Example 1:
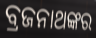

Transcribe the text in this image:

ବ୍ରଜନାଥଙ୍କର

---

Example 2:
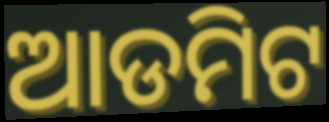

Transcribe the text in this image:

ଆଡମିଟ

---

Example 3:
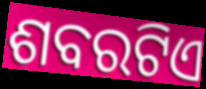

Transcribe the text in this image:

ଶବରଟିଏ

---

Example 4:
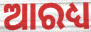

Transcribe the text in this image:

ଆରଧ୍ୟ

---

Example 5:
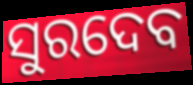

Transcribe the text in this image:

ସୁରଦେବ